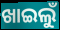
ଖାଇଲୁଁ